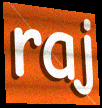
raj